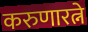
करुणारत्ने